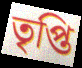
তৃপ্তি